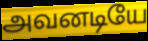
அவனடியே